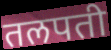
तलपती